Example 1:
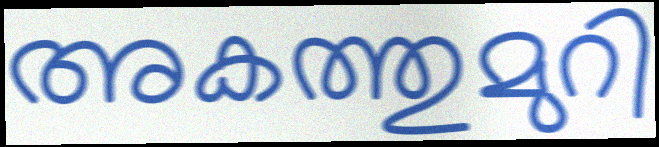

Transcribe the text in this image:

അകത്തുമുറി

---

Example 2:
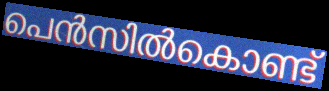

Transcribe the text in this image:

പെൻസിൽകൊണ്ട്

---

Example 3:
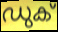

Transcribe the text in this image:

ഡുക്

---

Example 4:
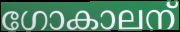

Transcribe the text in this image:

ഗോകാലന്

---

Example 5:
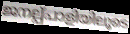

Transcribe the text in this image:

ജനല്പ്പാളിയിലൂടെ